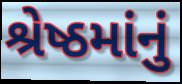
શ્રેષ્ઠમાંનું